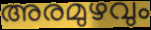
അരമുഴവും